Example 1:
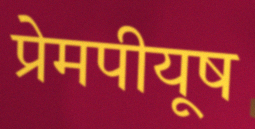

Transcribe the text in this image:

प्रेमपीयूष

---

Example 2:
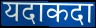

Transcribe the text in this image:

यदाकदा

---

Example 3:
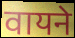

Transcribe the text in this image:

वायने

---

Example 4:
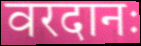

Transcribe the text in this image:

वरदानः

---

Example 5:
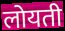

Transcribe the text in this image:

लोयती